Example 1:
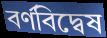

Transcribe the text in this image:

বর্ণবিদ্বেষ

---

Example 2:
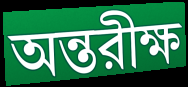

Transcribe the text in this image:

অন্তরীক্ষ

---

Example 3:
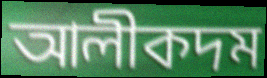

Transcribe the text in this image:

আলীকদম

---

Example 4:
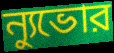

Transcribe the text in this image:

ন্যুভোর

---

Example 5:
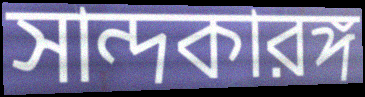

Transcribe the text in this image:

সান্দকারঙ্গ